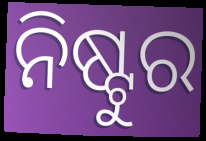
ନିଷ୍ଟୁର